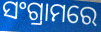
ସଂଗ୍ରାମରେ